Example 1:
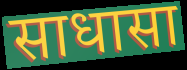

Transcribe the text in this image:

साधासा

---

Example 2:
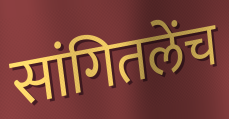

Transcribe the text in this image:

सांगितलेंच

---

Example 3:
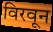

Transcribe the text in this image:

विरवून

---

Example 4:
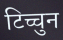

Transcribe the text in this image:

टिच्चुन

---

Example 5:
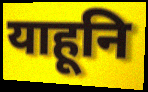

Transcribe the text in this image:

याहूनि